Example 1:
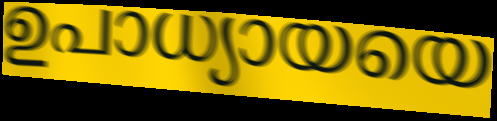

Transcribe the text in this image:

ഉപാധ്യായയെ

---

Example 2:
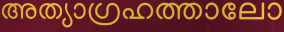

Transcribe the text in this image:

അത്യാഗ്രഹത്താലോ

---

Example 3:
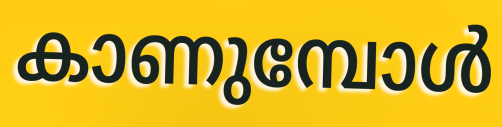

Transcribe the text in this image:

കാണുമ്പോൾ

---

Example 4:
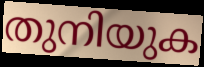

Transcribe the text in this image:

തുനിയുക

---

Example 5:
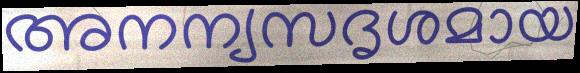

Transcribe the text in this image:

അനന്യസദൃശമായ